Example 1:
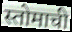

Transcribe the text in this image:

स्तोमाची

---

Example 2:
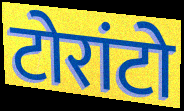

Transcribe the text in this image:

टोरांटो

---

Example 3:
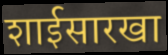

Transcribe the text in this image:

शाईसारखा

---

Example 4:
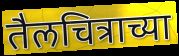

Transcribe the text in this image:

तैलचित्राच्या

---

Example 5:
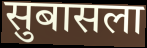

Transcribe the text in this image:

सुबासला